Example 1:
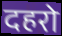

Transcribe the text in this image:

दहरो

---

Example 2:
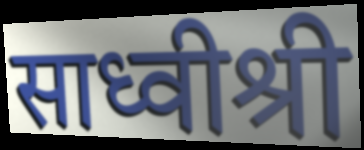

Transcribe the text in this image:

साध्वीश्री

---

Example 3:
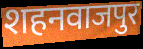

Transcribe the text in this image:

शहनवाजपुर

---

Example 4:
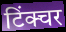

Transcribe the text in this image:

टिंक्चर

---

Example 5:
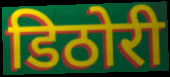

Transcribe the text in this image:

डिठोरी